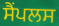
ਸੈਂਪਲਸ